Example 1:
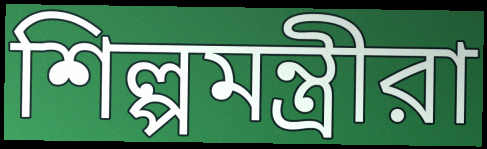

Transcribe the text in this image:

শিল্পমন্ত্রীরা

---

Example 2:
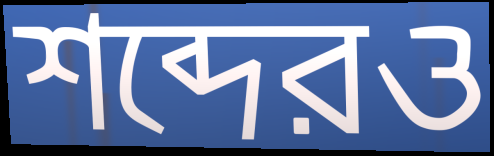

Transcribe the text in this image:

শব্দেরও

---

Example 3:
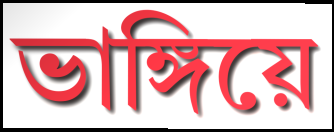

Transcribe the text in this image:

ভাঙ্গিয়ে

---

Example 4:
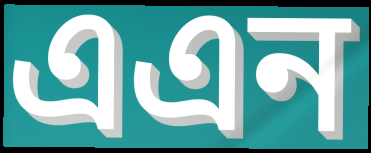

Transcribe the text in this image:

এএন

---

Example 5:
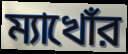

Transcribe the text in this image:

ম্যাখোঁর